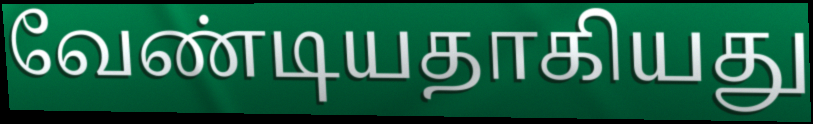
வேண்டியதாகியது